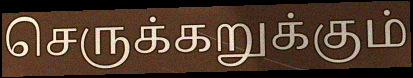
செருக்கறுக்கும்